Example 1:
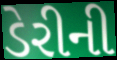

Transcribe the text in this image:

ડેરીની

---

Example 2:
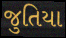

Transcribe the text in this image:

જુતિયા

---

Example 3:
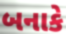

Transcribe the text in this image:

બનાકે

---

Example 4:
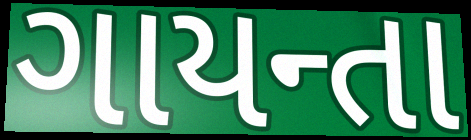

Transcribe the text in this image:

ગાયન્તા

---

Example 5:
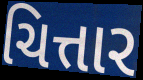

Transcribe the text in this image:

ચિત્તાર